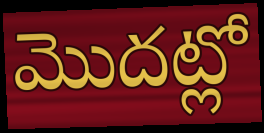
మొదట్లో